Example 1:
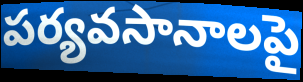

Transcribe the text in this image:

పర్యవసానాలపై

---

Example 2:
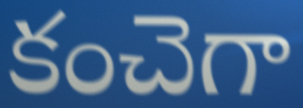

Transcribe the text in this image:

కంచెగా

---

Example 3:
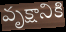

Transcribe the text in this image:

వృక్షానికి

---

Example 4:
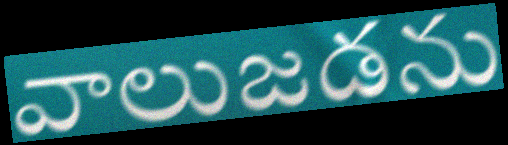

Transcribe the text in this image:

వాలుజడను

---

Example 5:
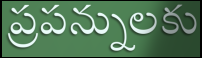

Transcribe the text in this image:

ప్రపన్నులకు